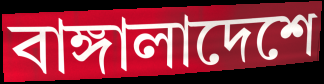
বাঙ্গালাদেশে